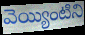
వెయ్యింటిని